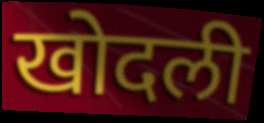
खोदली